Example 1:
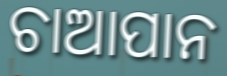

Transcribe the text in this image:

ଚାଆପାନ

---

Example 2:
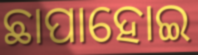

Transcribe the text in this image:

ଛାପାହୋଇ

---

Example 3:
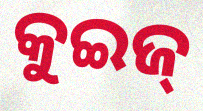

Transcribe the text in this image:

କୁଇଜ୍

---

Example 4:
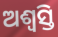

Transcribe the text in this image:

ଅଶ୍ୱସ୍ତି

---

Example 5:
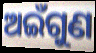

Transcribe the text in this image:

ଅଇଁଗୁଣ